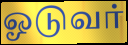
ஓடுவர்